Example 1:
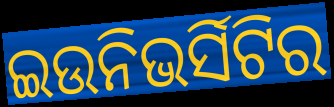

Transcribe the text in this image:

ଇଉନିଭର୍ସିଟିର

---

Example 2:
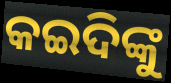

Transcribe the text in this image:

କଇଦିଙ୍କୁ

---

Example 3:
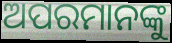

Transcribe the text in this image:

ଅପରମାନଙ୍କୁ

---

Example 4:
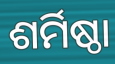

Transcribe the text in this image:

ଶର୍ମିଷ୍ଠା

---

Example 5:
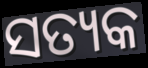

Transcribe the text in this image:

ସତ୍ୟକ